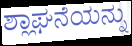
ಶ್ಲಾಘನೆಯನ್ನು